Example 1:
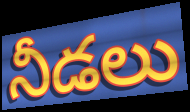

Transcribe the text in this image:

నీడలు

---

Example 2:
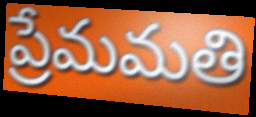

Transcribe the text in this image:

ప్రేమమతి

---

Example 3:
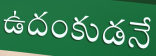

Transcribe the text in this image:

ఉదంకుడనే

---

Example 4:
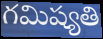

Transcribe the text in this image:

గమిష్యతి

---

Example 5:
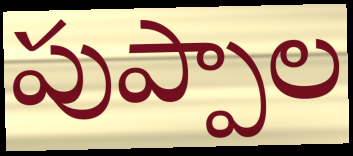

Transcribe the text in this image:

పుప్పాల